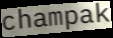
champak